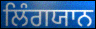
ਲਿੰਗਯਾਨ